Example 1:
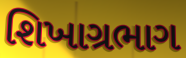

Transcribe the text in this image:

શિખાગ્રભાગ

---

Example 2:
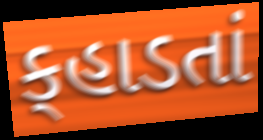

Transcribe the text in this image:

ક્‌હાડતાં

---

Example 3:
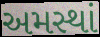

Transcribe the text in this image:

અમસ્થાં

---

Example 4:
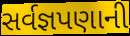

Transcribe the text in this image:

સર્વજ્ઞપણાની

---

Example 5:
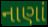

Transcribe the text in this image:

નાણાં